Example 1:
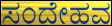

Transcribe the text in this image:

ಸಂದೇಹವ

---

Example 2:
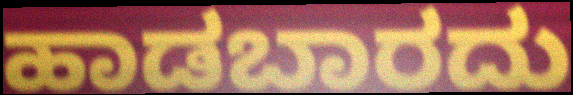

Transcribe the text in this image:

ಹಾಡಬಾರದು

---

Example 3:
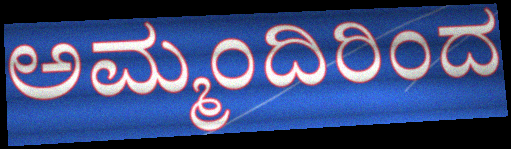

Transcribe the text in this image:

ಅಮ್ಮಂದಿರಿಂದ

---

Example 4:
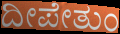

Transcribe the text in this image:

ದೀಪೇತುಂ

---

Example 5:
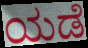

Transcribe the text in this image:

ಯಡೆ